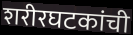
शरीरघटकांची